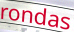
rondas